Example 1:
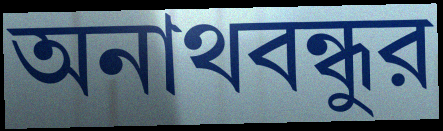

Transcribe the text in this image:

অনাথবন্ধুর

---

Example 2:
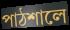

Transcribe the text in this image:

পাঠশালে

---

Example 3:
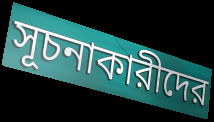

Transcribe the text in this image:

সূচনাকারীদের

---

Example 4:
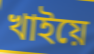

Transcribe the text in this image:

খাইয়ে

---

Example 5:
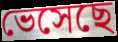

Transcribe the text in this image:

ভেসেছে